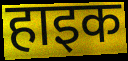
हाइक